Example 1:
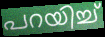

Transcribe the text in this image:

പറയിച്ച്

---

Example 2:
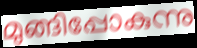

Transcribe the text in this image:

മുങ്ങിപ്പോകുന്നു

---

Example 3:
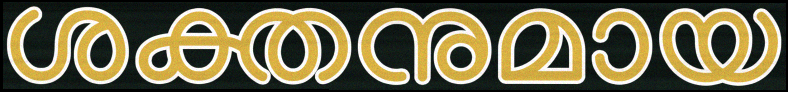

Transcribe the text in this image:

ശക്തനുമായ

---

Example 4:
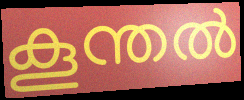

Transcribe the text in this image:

കൂന്തൽ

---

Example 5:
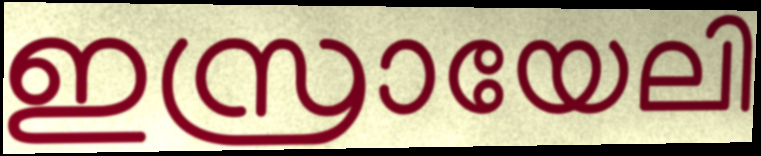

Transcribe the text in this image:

ഇസ്രായേലി